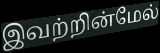
இவற்றின்மேல்